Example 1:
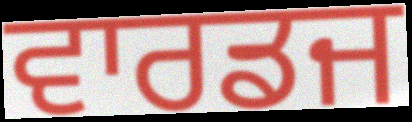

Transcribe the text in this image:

ਵਾਰਡਜ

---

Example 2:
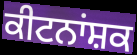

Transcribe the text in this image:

ਕੀਟਨਾਂਸ਼ਕ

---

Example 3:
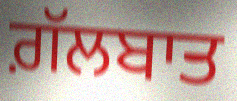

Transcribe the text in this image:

ਗ਼ੱਲਬਾਤ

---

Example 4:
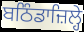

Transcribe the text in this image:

ਬਠਿੰਡਾਜ਼ਿਲ੍ਹੇ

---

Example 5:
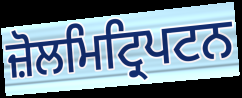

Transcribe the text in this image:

ਜ਼ੋਲਮਿਟ੍ਰਿਪਟਨ